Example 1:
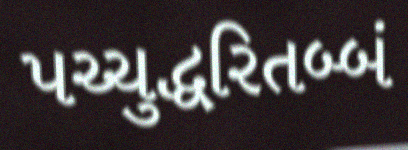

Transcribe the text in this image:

પચ્ચુદ્ધરિતબ્બં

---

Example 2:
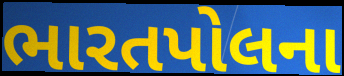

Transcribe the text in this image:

ભારતપોલના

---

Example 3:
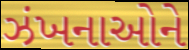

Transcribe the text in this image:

ઝંખનાઓને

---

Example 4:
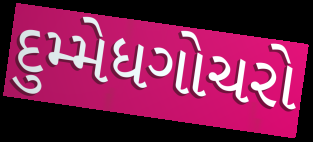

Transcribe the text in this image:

દુમ્મેધગોચરો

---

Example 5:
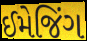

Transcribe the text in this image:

ઈમેજિંગ